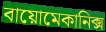
বায়োমেকানিক্স